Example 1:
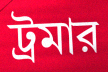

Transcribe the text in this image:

ট্রমার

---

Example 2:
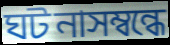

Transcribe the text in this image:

ঘটনাসম্বন্ধে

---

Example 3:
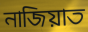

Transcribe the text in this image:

নাজিয়াত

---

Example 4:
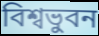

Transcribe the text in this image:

বিশ্বভুবন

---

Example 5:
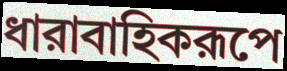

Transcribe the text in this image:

ধারাবাহিকরূপে